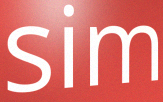
sim